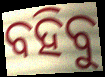
ବହିବୁ